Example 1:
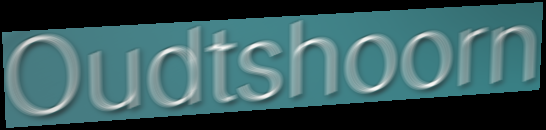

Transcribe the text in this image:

Oudtshoorn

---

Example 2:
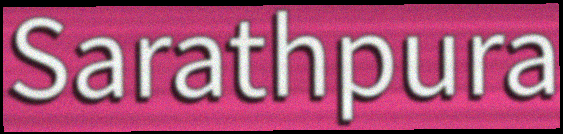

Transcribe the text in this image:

Sarathpura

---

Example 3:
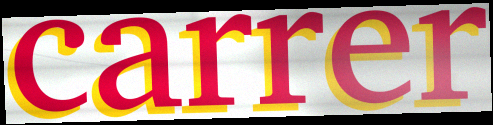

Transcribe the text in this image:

carrer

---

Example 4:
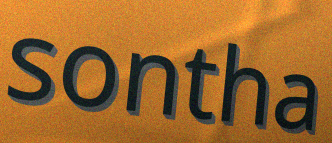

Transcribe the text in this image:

sontha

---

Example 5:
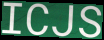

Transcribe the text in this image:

ICJS